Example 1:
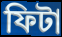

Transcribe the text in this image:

ফিটা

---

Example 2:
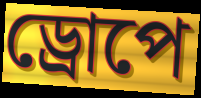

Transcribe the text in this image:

ড্ৰোপে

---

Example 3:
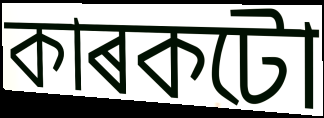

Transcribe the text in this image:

কাৰকটো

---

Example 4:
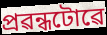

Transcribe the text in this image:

প্ৰৱন্ধটোৱে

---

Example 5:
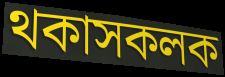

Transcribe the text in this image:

থকাসকলক